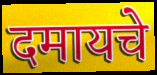
दमायचे